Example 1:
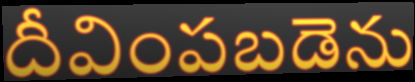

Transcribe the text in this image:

దీవింపబడెను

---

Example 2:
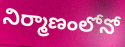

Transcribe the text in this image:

నిర్మాణంలోనో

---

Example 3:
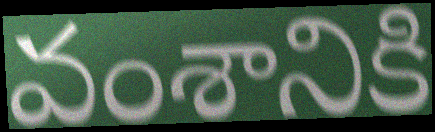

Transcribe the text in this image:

వంశానికి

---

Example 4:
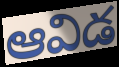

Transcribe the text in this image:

ఆవిడ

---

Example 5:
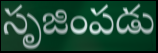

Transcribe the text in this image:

సృజింపడు